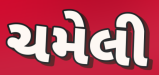
ચમેલી